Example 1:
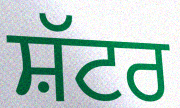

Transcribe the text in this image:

ਸ਼ੱਟਰ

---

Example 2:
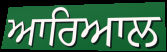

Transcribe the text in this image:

ਆਰਿਆਲ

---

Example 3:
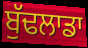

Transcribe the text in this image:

ਬੁੱਢਲਾਡਾ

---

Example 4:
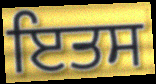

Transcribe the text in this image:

ਇਤਸ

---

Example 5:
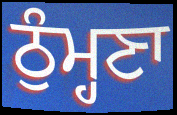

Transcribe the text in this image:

ਠੁੰਮ੍ਹਣਾ